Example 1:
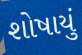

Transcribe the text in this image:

શોષાયું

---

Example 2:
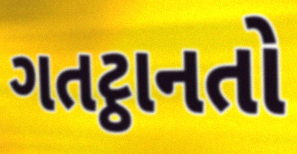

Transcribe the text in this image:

ગતટ્ઠાનતો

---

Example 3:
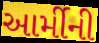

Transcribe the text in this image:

આર્મીની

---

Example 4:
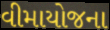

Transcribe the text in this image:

વીમાયોજના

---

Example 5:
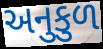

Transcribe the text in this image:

અનુકુળ